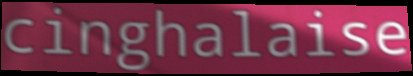
cinghalaise